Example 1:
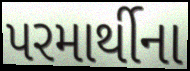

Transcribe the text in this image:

પરમાર્થીના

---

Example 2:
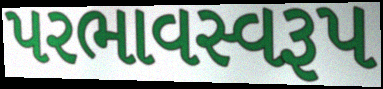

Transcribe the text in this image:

પરભાવસ્વરૂપ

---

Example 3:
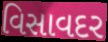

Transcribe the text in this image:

વિસાવદર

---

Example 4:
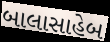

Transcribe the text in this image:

બાલાસાહેબ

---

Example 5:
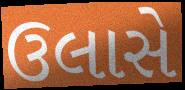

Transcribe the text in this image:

ઉલાસે